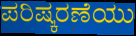
ಪರಿಷ್ಕರಣೆಯು